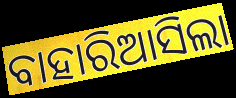
ବାହାରିଆସିଲା